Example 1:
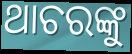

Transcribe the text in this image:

ଥାଚରଙ୍କୁ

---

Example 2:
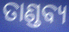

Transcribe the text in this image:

ତାଣ୍ଡବ୍ୟ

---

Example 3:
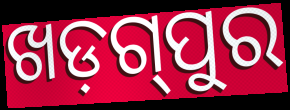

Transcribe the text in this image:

ଖଡ଼ଗ୍‌ପୁର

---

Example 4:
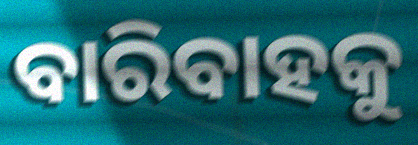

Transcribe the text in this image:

ବାରିବାହକୁ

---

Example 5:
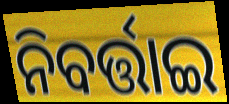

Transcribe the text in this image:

ନିବର୍ତ୍ତାଇ